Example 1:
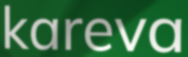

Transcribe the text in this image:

kareva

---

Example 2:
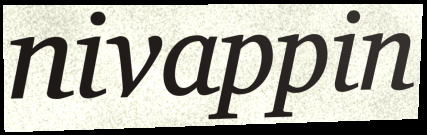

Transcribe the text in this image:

nivappin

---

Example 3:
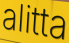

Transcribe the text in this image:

alitta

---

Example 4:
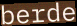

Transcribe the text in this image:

berde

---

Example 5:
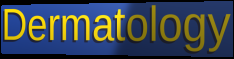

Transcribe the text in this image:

Dermatology